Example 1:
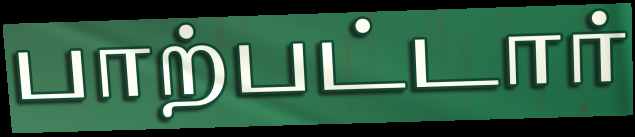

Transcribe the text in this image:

பாற்பட்டார்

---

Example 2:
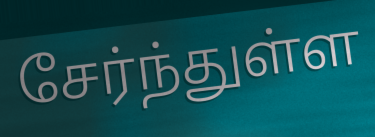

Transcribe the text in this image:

சேர்ந்துள்ள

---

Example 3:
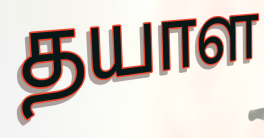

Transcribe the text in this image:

தயாள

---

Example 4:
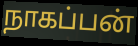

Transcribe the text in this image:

நாகப்பன்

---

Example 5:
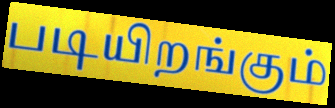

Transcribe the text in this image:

படியிறங்கும்